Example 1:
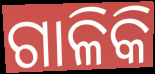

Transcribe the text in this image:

ଗାଳିକି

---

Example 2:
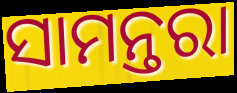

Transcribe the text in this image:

ସାମନ୍ତରା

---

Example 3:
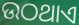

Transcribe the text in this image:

ଉଠଥାଏ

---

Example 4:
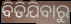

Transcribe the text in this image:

ବିତିଯିବାରୁ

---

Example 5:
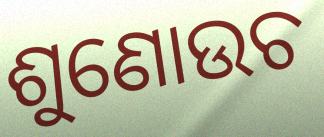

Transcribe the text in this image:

ଶୁଣୋଉଚ